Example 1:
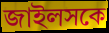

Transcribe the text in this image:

জাইলসকে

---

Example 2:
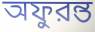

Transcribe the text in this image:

অফুরন্ত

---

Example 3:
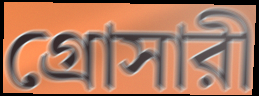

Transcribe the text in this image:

গ্রোসারী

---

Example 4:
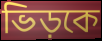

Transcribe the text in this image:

ভিড়কে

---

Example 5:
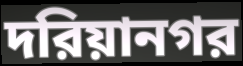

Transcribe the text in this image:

দরিয়ানগর